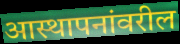
आस्थापनांवरील